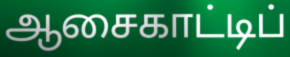
ஆசைகாட்டிப்